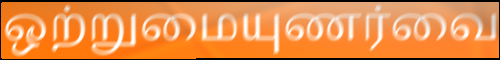
ஒற்றுமையுணர்வை